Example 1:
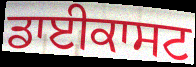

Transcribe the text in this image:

ਡਾਈਕਾਸਟ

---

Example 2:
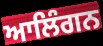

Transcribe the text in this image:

ਆਲਿੰਗਨ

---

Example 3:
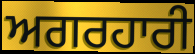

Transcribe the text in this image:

ਅਗਰਹਾਰੀ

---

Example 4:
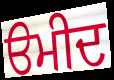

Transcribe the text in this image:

ੳਮੀਦ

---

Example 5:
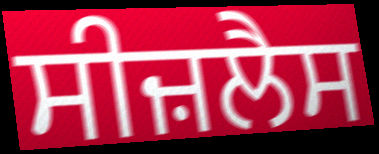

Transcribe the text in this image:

ਸੀਜ਼ਲੈਸ